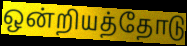
ஒன்றியத்தோடு